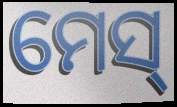
ମେସ୍